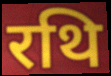
रथि